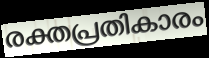
രക്തപ്രതികാരം